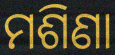
ମଶିଣା